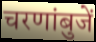
चरणांबुजें